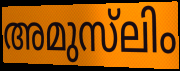
അമുസ്‌ലിം